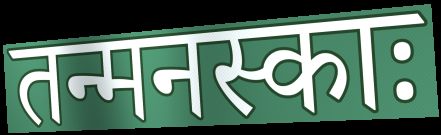
तन्मनस्काः